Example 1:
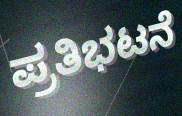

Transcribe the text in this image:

ಪ್ರತಿಭಟನೆ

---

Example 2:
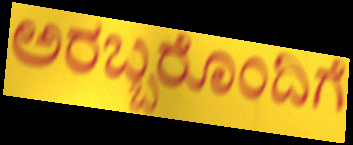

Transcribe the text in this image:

ಅರಬ್ಬರೊಂದಿಗೆ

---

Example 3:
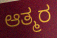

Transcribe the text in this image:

ಆತ್ಮರ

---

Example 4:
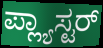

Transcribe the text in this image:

ಪ್ಲ್ಯಾಸ್ಟರ್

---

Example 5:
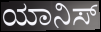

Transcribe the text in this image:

ಯಾನಿಸ್